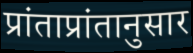
प्रांताप्रांतानुसार